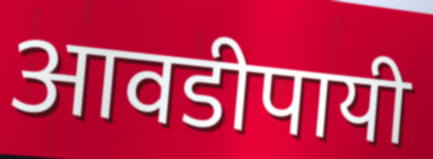
आवडीपायी